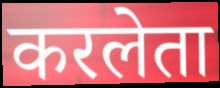
करलेता